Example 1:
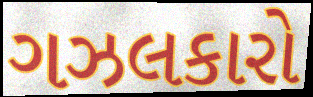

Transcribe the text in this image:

ગઝલકારો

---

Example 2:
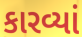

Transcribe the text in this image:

કારવ્યાં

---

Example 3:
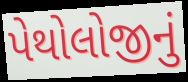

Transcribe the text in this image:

પેથોલોજીનું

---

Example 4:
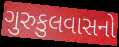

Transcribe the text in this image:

ગુરુકુલવાસનો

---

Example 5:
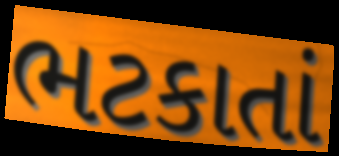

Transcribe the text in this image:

ભટકાતાં